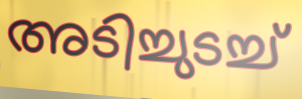
അടിച്ചുടച്ച്